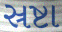
સ્રષ્ટા